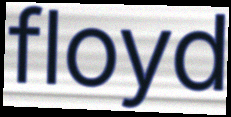
floyd